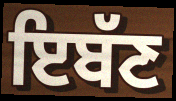
ਇਬੱਣ